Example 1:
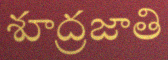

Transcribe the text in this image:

శూద్రజాతి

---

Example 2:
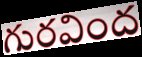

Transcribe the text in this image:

గురవింద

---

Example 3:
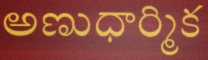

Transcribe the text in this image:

అణుధార్మిక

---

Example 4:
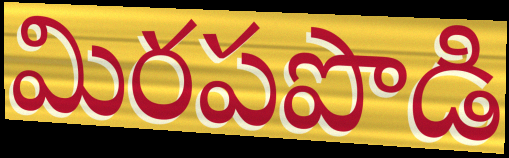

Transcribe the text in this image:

మిరపపొడి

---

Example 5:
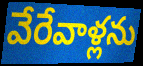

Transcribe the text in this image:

వేరేవాళ్లను